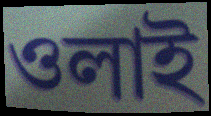
ওলাই